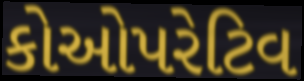
કોઓપરેટિવ